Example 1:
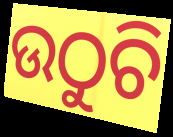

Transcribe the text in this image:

ଉଠୁଚି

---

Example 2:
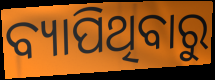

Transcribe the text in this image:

ବ୍ୟାପିଥିବାରୁ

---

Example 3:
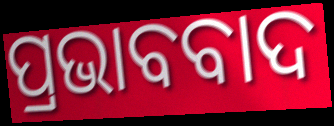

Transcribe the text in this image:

ପ୍ରଭାବବାଦ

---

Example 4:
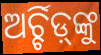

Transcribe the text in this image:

ଅର୍ଚ୍ଚିଡ଼୍‌ଙ୍କୁ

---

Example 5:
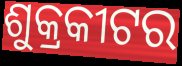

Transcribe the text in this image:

ଶୁକ୍ରକୀଟର